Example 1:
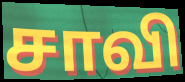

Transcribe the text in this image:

சாவி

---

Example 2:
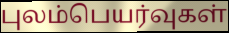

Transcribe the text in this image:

புலம்பெயர்வுகள்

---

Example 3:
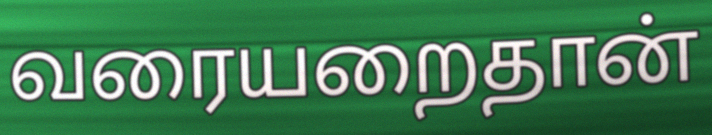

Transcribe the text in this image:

வரையறைதான்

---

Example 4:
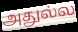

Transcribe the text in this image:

அதுல்ல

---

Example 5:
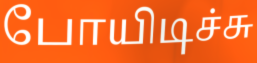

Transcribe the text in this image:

போயிடிச்சு